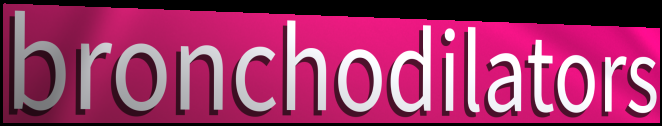
bronchodilators